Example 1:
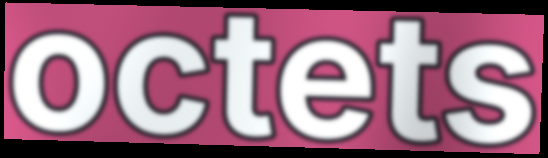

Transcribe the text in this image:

octets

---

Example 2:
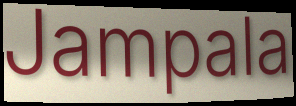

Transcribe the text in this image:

Jampala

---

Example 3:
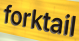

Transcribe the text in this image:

forktail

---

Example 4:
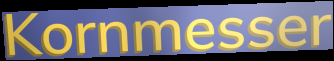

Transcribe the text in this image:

Kornmesser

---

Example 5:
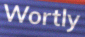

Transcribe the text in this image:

Wortly